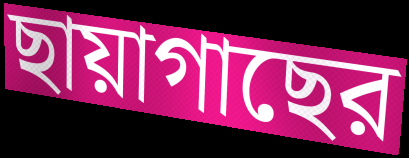
ছায়াগাছের